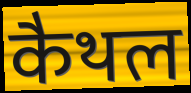
कैथल